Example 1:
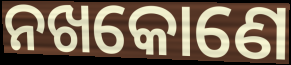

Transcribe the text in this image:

ନଖକୋଣେ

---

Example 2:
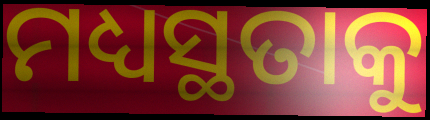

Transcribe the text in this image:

ମଧ୍ୟସ୍ଥତାକୁ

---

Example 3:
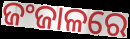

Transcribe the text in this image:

ଜଂଜାଳରେ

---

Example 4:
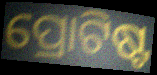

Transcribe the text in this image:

ପ୍ରୋଟିଷ୍ଟ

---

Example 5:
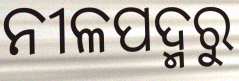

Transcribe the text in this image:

ନୀଳପଦ୍ମରୁ